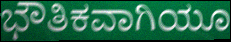
ಭೌತಿಕವಾಗಿಯೂ